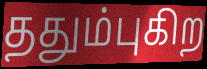
ததும்புகிற